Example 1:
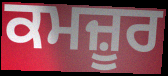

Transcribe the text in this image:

ਕਮਜ਼ੂਰ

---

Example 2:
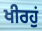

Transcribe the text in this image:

ਖੀਰਹੁਂ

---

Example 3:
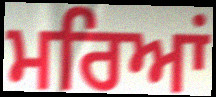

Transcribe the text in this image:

ਮਰਿਆਂ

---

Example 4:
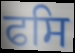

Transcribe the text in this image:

ਫਸਿ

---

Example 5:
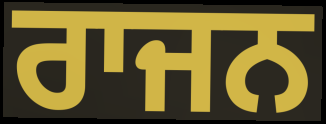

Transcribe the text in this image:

ਰਾਜਨ